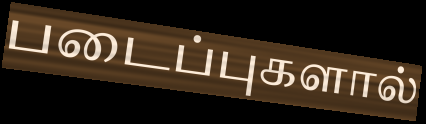
படைப்புகளால்